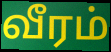
வீரம்